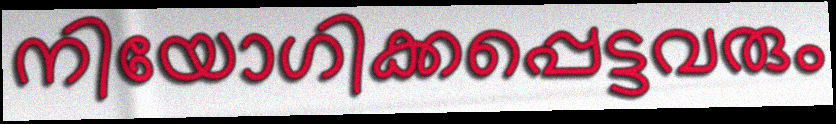
നിയോഗിക്കപ്പെട്ടവരും